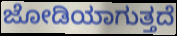
ಜೋಡಿಯಾಗುತ್ತದೆ